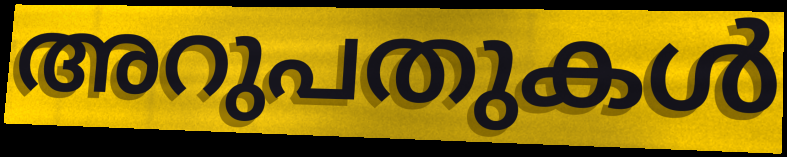
അറുപതുകൾ